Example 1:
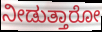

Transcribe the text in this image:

ನೀಡುತ್ತಾರೋ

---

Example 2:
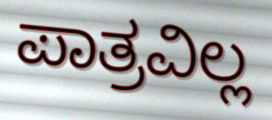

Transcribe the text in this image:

ಪಾತ್ರವಿಲ್ಲ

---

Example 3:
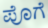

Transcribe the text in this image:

ಪೊಗೆ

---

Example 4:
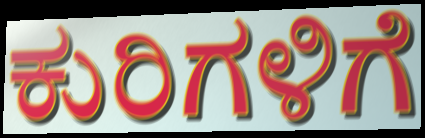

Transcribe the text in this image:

ಕುರಿಗಳಿಗೆ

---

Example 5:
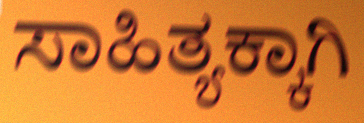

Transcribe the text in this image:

ಸಾಹಿತ್ಯಕ್ಕಾಗಿ